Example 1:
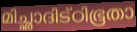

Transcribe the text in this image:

മിച്ഛാദിട്ഠിഭൂതാ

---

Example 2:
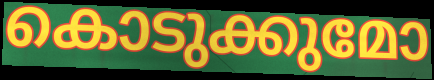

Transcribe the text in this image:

കൊടുക്കുമോ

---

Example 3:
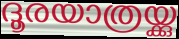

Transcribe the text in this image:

ദൂരയാത്രയ്ക്കു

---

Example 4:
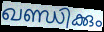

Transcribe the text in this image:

ഖണ്ഡിക്കും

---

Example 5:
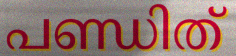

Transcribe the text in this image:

പണ്ഡിത്